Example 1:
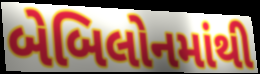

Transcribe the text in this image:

બેબિલોનમાંથી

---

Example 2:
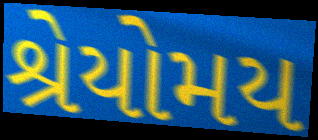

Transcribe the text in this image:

શ્રેયોમય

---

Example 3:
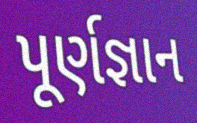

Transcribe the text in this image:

પૂર્ણજ્ઞાન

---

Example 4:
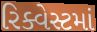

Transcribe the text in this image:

રિક્વેસ્ટમાં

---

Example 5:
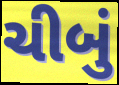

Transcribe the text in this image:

ચીબું